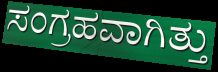
ಸಂಗ್ರಹವಾಗಿತ್ತು